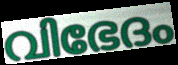
വിഭേദം